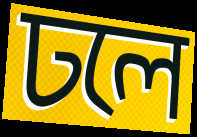
ঢলে